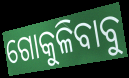
ଗୋକୁଳିବାବୁ